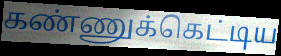
கண்ணுக்கெட்டிய